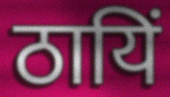
ठायिं